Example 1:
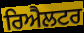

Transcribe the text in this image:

ਰਿਐਲਟਰ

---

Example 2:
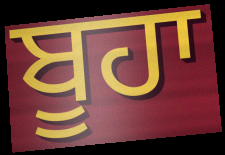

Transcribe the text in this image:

ਬੂਹਾ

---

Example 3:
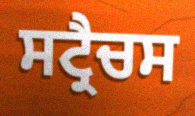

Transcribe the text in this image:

ਸਟ੍ਰੈਚਸ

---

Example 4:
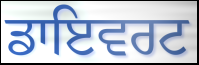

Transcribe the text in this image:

ਡਾਇਵਰਟ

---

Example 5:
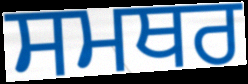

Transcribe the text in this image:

ਸਮਥਰ